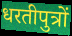
धरतीपुत्रों